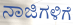
ನಾಜಿಗಳಿಗೆ